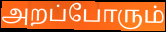
அறப்போரும்